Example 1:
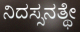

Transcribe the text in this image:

ನಿದಸ್ಸನತ್ಥೇ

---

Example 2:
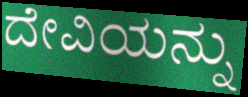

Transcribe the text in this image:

ದೇವಿಯನ್ನು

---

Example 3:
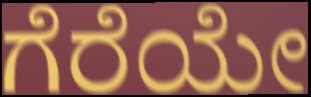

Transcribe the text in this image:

ಗೆರೆಯೇ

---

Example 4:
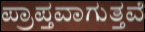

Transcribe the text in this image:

ಪ್ರಾಪ್ತವಾಗುತ್ತವೆ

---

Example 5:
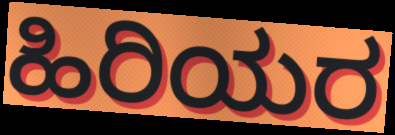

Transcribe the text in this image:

ಹಿರಿಯರ